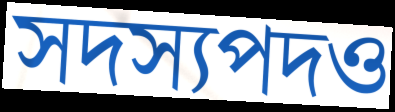
সদস্যপদও